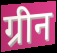
ग्रीन